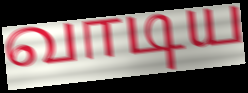
வாடிய